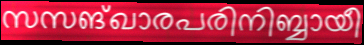
സസങ്ഖാരപരിനിബ്ബായീ